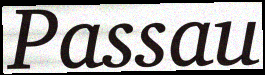
Passau